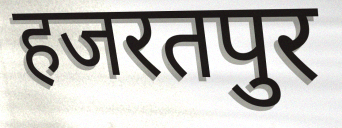
हजरतपुर